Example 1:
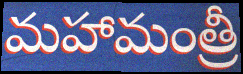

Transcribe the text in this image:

మహామంత్రీ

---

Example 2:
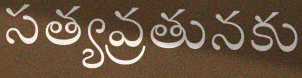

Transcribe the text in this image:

సత్యవ్రతునకు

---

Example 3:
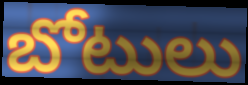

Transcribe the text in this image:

బోటులు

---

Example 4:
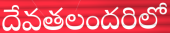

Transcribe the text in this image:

దేవతలందరిలో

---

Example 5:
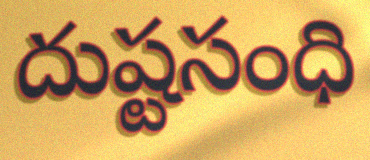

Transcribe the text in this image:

దుష్టసంధి